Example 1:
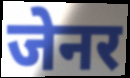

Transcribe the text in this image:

जेनर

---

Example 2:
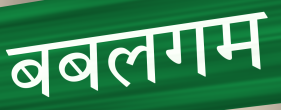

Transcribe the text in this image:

बबलगम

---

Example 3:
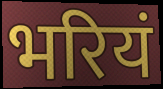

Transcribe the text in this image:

भरियं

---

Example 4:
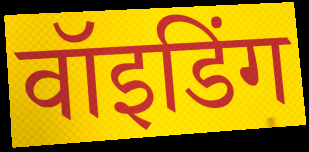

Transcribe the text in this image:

वॉइडिंग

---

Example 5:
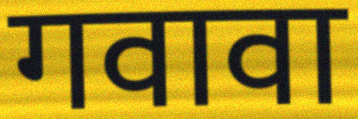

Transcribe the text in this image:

गवावा